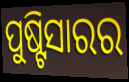
ପୁଷ୍ଟିସାରର